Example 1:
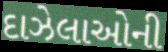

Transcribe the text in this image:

દાઝેલાઓની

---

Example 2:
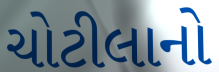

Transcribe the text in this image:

ચોટીલાનો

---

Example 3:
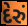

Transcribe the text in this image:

દેરું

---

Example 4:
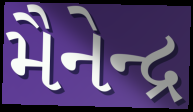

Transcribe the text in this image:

મૈનેન્દ્ર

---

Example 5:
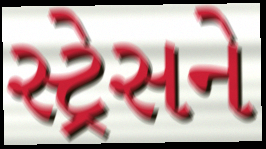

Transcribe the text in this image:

સ્ટ્રેસને